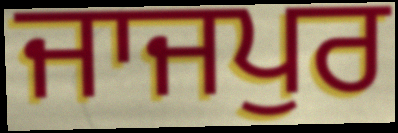
ਜਾਜਪੁਰ